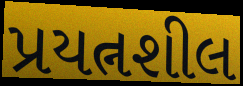
પ્રયત્નશીલ